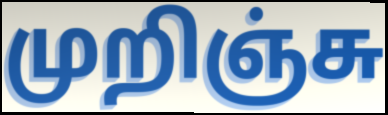
முறிஞ்சு